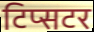
टिप्सटर